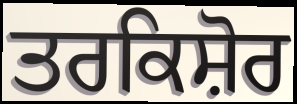
ਤਰਕਿਸ਼ੋਰ